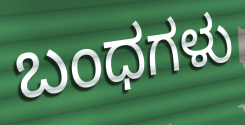
ಬಂಧಗಳು